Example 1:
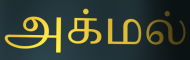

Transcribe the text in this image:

அக்மல்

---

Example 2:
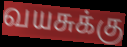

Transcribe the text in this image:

வயசுக்கு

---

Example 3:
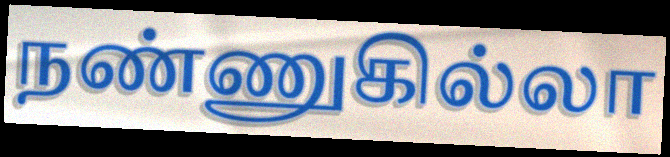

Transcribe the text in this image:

நண்ணுகில்லா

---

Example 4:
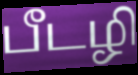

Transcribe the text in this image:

பீடழி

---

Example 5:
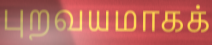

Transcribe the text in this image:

புறவயமாகக்